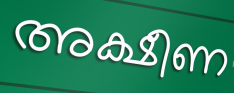
അക്ഷീണ